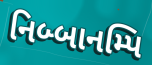
નિબ્બાનમ્પિ